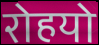
रोहयो